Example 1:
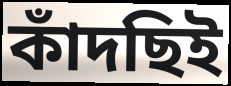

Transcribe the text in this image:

কাঁদছিই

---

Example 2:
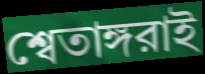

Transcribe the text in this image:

শ্বেতাঙ্গরাই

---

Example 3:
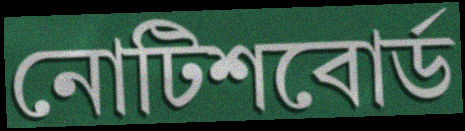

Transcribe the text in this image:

নোটিশবোর্ড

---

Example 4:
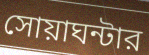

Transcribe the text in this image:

সোয়াঘন্টার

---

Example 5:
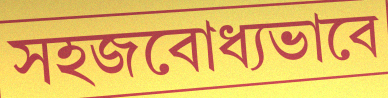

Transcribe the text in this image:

সহজবোধ্যভাবে